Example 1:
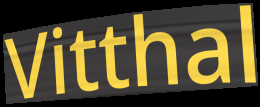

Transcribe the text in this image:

Vitthal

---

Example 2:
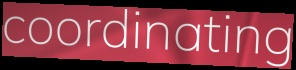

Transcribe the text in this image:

coordinating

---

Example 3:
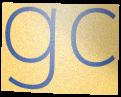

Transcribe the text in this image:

gc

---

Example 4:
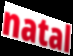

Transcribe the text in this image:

natal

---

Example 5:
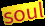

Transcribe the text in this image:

soul